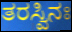
ತರಸ್ವಿನಃ